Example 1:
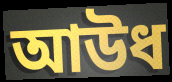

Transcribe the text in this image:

আউধ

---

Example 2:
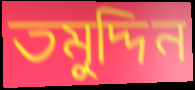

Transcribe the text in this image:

তমুদ্দিন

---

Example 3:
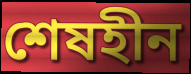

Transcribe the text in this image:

শেষহীন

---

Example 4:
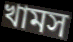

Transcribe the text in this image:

খামস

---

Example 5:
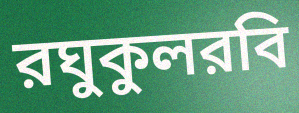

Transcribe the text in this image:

রঘুকুলরবি